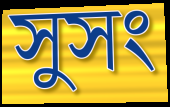
সুসং